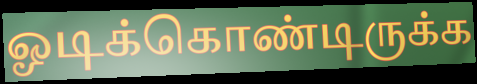
ஓடிக்கொண்டிருக்க